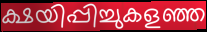
ക്ഷയിപ്പിച്ചുകളഞ്ഞ